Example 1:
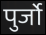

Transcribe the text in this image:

पुर्जो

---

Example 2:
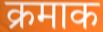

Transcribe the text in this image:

क्रमाक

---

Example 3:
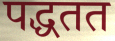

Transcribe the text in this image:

पद्धतत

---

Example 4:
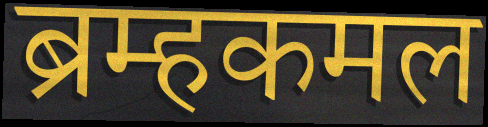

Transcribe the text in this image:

ब्रम्हकमल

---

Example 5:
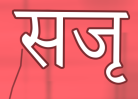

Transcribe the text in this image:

सजृ